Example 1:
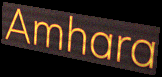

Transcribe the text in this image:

Amhara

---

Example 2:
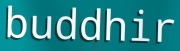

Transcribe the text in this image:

buddhir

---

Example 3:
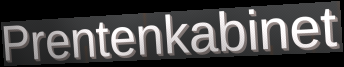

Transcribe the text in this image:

Prentenkabinet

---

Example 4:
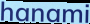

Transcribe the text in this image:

hanami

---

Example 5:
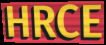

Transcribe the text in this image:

HRCE